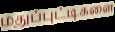
மதுப்புட்டிகளை